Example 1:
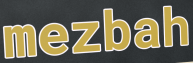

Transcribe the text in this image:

mezbah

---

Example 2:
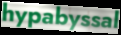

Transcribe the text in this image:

hypabyssal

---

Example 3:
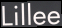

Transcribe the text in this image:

Lillee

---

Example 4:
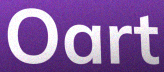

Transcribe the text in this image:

Oart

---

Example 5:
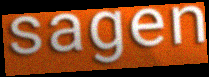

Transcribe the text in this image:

sagen